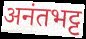
अनंतभट्ट